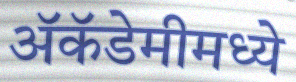
ॲकॅडेमीमध्ये